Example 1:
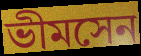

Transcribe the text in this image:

ভীমসেন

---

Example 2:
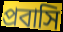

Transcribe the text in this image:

প্রবাসি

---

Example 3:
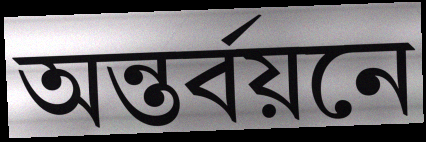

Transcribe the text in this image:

অন্তর্বয়নে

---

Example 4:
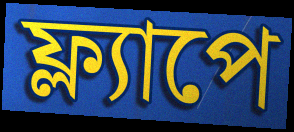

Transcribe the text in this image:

ফ্ল্যাপে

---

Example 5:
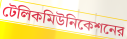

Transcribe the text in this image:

টেলিকমিউনিকেশনের